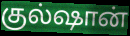
குல்ஷான்